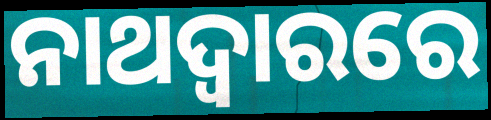
ନାଥଦ୍ୱାରରେ